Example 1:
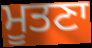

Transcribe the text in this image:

ਮੂਤਣਾ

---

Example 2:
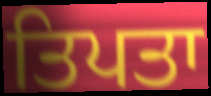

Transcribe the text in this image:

ਤਿਪਤਾ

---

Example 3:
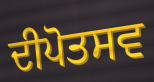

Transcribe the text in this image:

ਦੀਪੋਤਸਵ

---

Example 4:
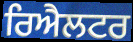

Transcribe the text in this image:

ਰਿਐਲਟਰ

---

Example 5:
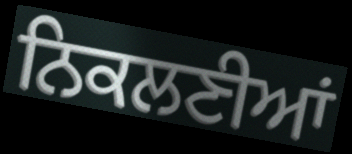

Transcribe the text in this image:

ਨਿਕਲਣੀਆਂ